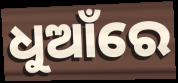
ଧୁଆଁରେ